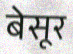
बेसूर